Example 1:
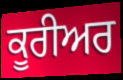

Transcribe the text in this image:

ਕੂਰੀਅਰ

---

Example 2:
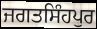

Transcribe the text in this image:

ਜਗਤਸਿੰਹਪੁਰ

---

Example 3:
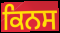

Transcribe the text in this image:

ਕਿਨਸ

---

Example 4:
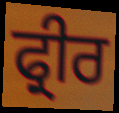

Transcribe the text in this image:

ਫ੍ਰੀਰ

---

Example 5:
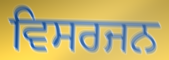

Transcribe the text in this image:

ਵਿਸਰਜਨ